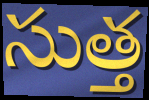
సుత్త